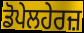
ਡੋਪੇਲਹੇਰਜ਼